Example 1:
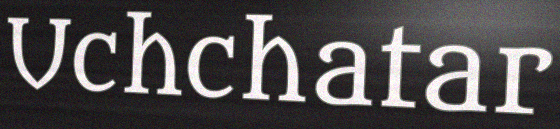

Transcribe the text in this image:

Uchchatar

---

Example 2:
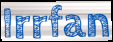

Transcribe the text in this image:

Irrfan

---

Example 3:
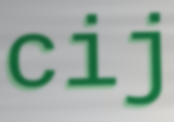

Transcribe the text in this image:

cij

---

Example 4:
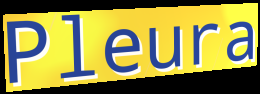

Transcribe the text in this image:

Pleura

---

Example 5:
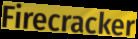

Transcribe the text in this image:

Firecracker